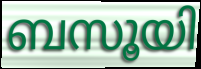
ബസൂയി